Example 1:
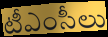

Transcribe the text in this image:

టీఎంసీలు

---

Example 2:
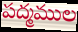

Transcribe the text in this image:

పద్మముల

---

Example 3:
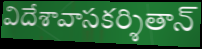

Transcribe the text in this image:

విదేశావాసకర్శితాన్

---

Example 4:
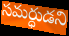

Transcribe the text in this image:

సమర్ధుడని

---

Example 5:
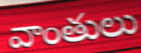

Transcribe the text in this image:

వాంతులు